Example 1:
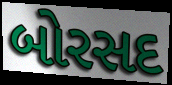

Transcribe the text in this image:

બોરસદ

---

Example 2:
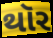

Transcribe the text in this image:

થૉર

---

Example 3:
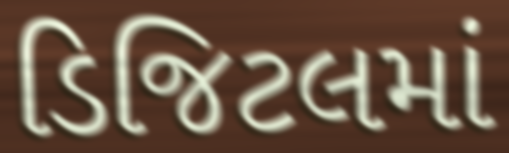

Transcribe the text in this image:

ડિજિટલમાં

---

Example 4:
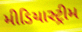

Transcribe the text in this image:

મીડિયાસ્ટ્રીમ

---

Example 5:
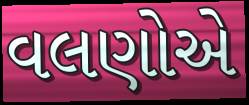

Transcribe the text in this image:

વલણોએ